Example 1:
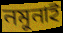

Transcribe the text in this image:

নমুনাই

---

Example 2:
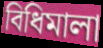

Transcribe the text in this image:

বিধিমালা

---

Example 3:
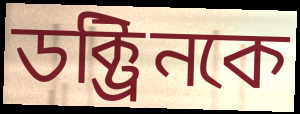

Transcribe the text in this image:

ডক্ট্রিনকে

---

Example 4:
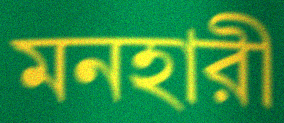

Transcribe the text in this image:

মনহারী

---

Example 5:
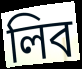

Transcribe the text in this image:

লিব